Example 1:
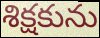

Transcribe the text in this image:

శిక్షకును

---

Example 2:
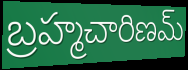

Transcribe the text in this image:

బ్రహ్మచారిణమ్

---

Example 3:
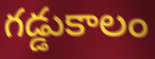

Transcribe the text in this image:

గడ్డుకాలం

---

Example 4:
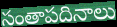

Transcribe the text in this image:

సంతాపదినాలు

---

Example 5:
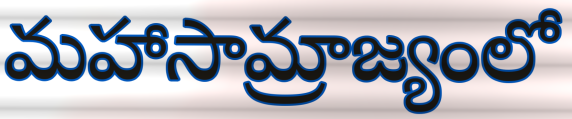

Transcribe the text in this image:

మహాసామ్రాజ్యంలో